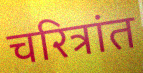
चरित्रांत